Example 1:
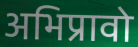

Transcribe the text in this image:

अभिप्रावो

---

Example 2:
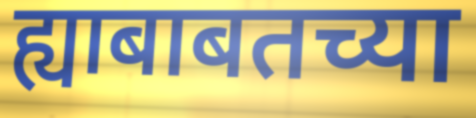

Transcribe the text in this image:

ह्याबाबतच्या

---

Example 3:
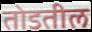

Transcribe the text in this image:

तोडतील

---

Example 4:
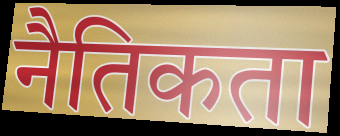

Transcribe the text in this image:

नैतिकता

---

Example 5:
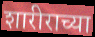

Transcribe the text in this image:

शारीराच्या